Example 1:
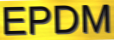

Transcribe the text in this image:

EPDM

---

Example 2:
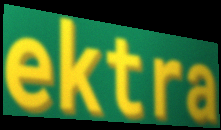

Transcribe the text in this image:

ektra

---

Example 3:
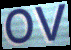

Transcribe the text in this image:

ov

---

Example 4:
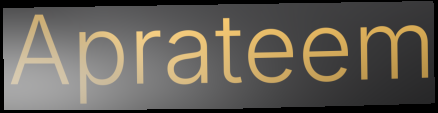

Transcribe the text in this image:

Aprateem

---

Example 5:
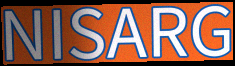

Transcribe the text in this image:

NISARG